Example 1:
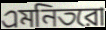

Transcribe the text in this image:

এমনিতরো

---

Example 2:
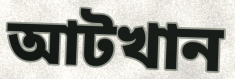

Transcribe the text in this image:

আটখান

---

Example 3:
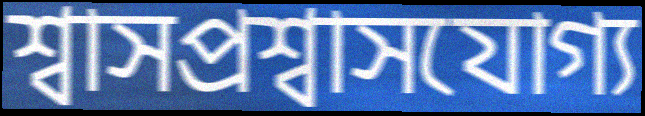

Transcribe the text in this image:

শ্বাসপ্রশ্বাসযোগ্য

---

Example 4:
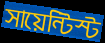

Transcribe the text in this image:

সায়েন্টিস্ট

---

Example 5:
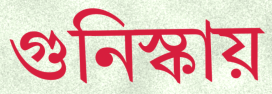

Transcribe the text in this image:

গুনিস্কায়